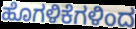
ಹೊಗಳಿಕೆಗಳಿಂದ